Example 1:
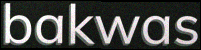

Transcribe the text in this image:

bakwas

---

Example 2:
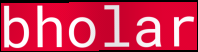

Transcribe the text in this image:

bholar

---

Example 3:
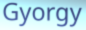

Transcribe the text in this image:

Gyorgy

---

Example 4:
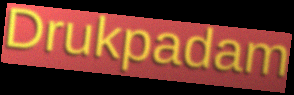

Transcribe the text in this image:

Drukpadam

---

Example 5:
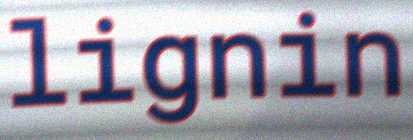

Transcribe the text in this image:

lignin